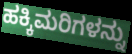
ಹಕ್ಕಿಮರಿಗಳನ್ನು